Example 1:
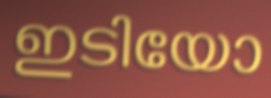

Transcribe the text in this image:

ഇടിയോ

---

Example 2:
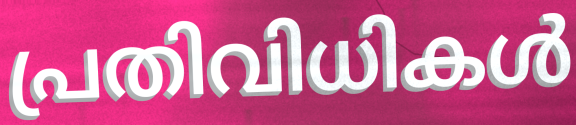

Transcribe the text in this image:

പ്രതിവിധികൾ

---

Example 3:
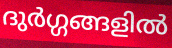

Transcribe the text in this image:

ദുർഗ്ഗങ്ങളിൽ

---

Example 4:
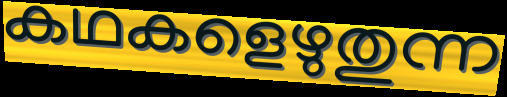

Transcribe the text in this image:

കഥകളെഴുതുന്ന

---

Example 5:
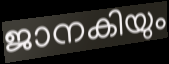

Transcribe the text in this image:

ജാനകിയും